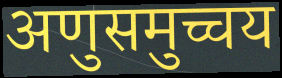
अणुसमुच्चय